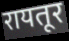
रायतूर